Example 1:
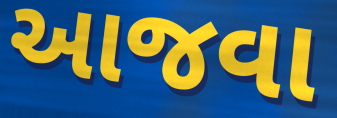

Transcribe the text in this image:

આજવા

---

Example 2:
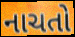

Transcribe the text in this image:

નાચતો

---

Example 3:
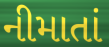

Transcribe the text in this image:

નીમાતાં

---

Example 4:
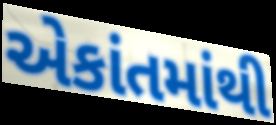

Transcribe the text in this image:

એકાંતમાંથી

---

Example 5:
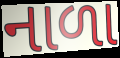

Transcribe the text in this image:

નાળા